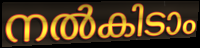
നൽകിടാം